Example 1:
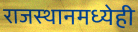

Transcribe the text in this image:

राजस्थानमध्येही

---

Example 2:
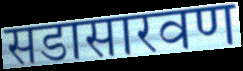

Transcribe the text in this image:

सडासारवण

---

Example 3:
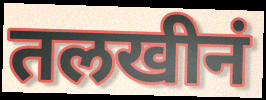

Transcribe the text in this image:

तलखीनं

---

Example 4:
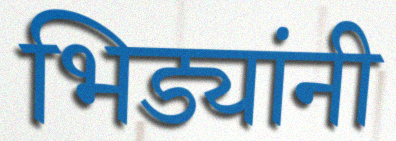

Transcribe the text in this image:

भिड्यांनी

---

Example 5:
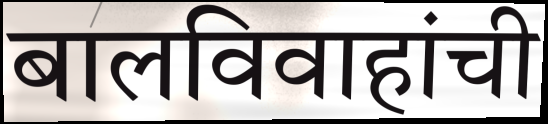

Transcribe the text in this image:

बालविवाहांची